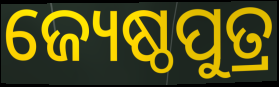
ଜ୍ୟେଷ୍ଠପୁତ୍ର